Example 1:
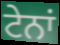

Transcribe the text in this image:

ਟੇਨਾਂ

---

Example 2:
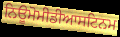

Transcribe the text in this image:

ਨਿਊਮੋਮੀਡੀਆਸਟਿਨਮ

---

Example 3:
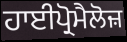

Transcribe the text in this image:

ਹਾਈਪ੍ਰੋਮੈਲੋਜ਼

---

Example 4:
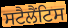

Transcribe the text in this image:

ਸਟੈਲੈਂਟਿਸ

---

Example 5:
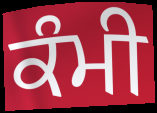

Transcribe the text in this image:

ਕੰਮੀ